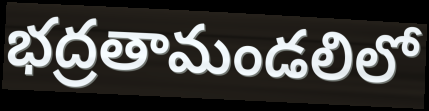
భద్రతామండలిలో